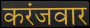
करंजवार